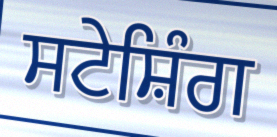
ਸਟੇਸ਼ਿੰਗ